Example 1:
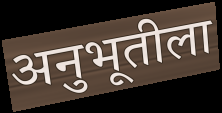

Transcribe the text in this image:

अनुभूतीला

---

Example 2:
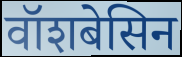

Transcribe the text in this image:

वॉशबेसिन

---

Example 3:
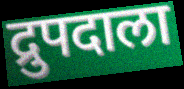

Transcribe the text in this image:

द्रुपदाला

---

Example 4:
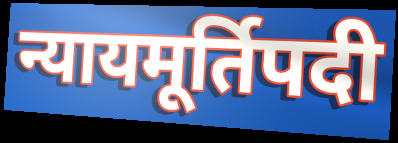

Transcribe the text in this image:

न्यायमूर्तिपदी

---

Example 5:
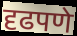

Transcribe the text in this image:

दृढपणे